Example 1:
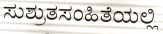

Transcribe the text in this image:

ಸುಶ್ರುತಸಂಹಿತೆಯಲ್ಲಿ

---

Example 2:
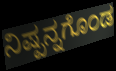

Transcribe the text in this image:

ನಿಷ್ಪನ್ನಗೊಂಡ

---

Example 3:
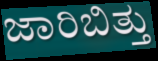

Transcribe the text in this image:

ಜಾರಿಬಿತ್ತು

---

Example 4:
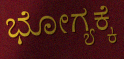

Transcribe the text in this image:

ಭೋಗ್ಯಕ್ಕೆ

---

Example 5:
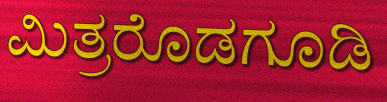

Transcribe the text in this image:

ಮಿತ್ರರೊಡಗೂಡಿ